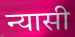
न्यासी